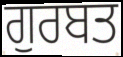
ਗੁਰਬਤ